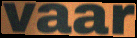
vaar